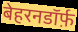
बेहरनडॉर्फ़